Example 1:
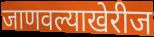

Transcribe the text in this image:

जाणवल्याखेरीज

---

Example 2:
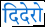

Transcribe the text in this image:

दिदेरो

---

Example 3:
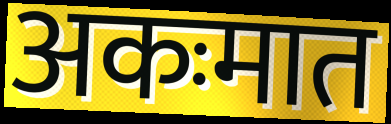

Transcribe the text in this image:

अकःमात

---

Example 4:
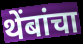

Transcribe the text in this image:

थेंबांचा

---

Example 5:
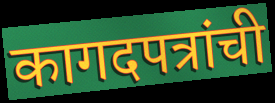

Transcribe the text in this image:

कागदपत्रांची